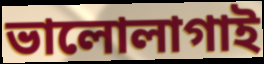
ভালোলাগাই